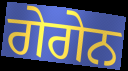
ਗੇਗੇਨ